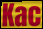
Kac